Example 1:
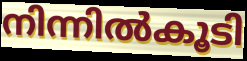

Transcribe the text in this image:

നിന്നിൽകൂടി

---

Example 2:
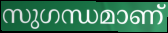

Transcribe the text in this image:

സുഗന്ധമാണ്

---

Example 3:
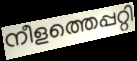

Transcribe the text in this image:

നീളത്തെപ്പറ്റി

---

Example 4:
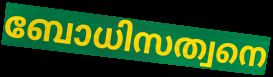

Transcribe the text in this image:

ബോധിസത്വനെ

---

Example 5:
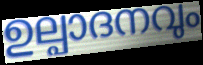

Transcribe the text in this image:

ഉല്പാദനവും